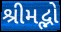
શ્રીમદ્ભો